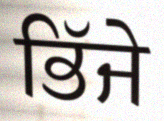
ਭਿੱਜੇ